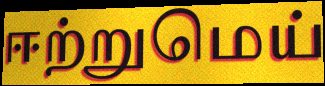
ஈற்றுமெய்